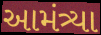
આમંત્ર્યા